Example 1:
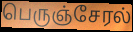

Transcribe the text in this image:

பெருஞ்சேரல்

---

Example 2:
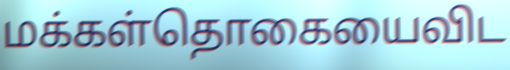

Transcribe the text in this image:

மக்கள்தொகையைவிட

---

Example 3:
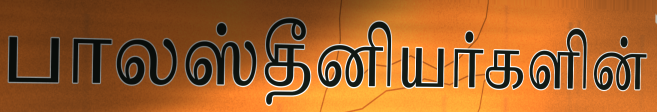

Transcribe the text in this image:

பாலஸ்தீனியர்களின்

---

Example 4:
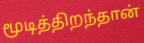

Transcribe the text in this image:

மூடித்திறந்தான்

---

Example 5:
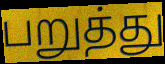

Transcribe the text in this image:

பறுத்து